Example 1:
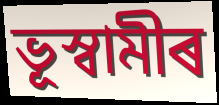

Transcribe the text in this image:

ভূস্বামীৰ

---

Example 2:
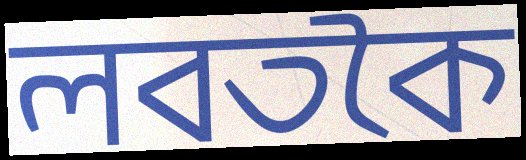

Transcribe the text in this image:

লবতকৈ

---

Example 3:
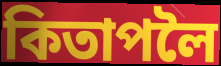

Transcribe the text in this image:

কিতাপলৈ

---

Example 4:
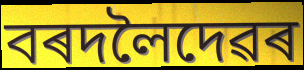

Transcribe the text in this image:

বৰদলৈদেৱৰ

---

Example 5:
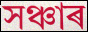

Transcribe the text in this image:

সঞ্চাৰ